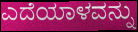
ಎದೆಯಾಳವನ್ನು